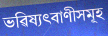
ভৱিষ্যৎবাণীসমূহ